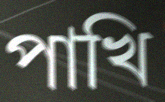
পাখি